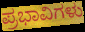
ಪ್ರಭಾವಿಗಳು